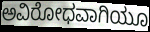
ಅವಿರೋಧವಾಗಿಯೂ